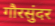
गौरसुंदर